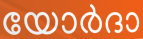
യോർദാ